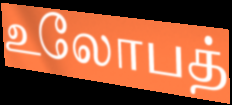
உலோபத்